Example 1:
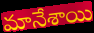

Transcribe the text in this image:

మానేశాయి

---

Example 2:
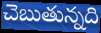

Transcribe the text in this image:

చెబుతున్నది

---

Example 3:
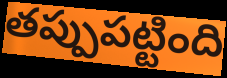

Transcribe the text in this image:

తప్పుపట్టింది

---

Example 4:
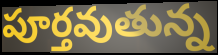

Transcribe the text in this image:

పూర్తవుతున్న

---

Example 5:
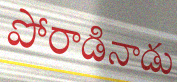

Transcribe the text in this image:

పోరాడినాడు